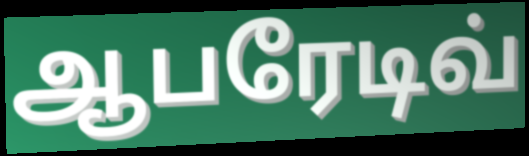
ஆபரேடிவ்